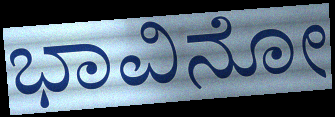
ಭಾವಿನೋ